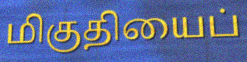
மிகுதியைப்